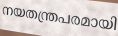
നയതന്ത്രപരമായി